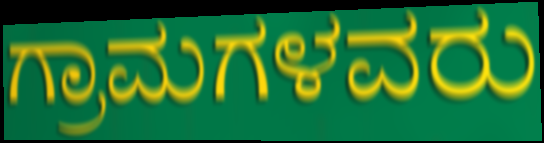
ಗ್ರಾಮಗಳವರು